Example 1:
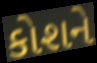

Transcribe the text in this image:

કોશને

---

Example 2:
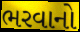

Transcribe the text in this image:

ભરવાનો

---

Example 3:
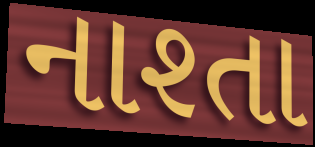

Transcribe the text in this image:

નાશ્તા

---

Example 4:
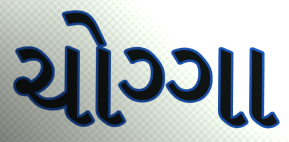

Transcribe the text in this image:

ચોગ્ગા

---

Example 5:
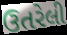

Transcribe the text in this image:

ઉતરેલી